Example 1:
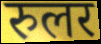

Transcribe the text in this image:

रुलर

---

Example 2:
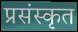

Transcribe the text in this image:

प्रसंस्कृत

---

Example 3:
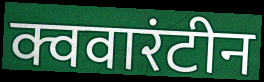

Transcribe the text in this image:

क्ववारंटीन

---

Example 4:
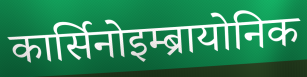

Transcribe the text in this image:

कार्सिनोइम्ब्रायोनिक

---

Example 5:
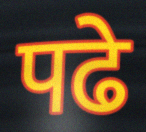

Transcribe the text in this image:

पढे